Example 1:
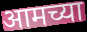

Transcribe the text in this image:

आमच्या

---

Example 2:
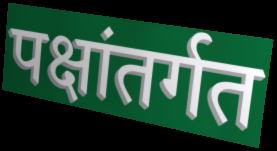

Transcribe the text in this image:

पक्षांतर्गत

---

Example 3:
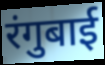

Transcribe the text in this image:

रंगुबाई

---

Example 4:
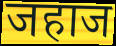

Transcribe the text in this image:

जहाज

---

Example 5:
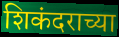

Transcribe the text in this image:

शिकंदराच्या